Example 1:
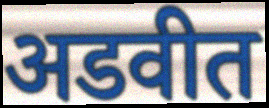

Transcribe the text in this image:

अडवीत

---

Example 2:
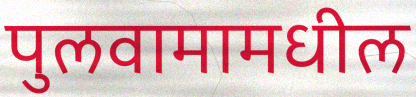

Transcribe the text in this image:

पुलवामामधील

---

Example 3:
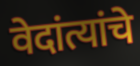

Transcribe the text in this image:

वेदांत्यांचे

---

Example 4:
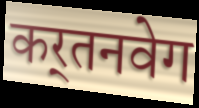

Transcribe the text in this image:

कर्तनवेग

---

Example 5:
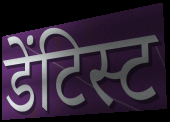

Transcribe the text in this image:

डेंटिस्ट